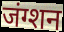
जंग्शन